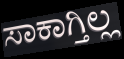
ಸಾಕಾಗ್ತಿಲ್ಲ